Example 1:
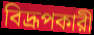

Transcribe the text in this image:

বিদ্রূপকারী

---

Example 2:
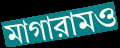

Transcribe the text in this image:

মাগারামও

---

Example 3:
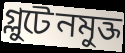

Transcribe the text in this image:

গ্লুটেনমুক্ত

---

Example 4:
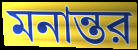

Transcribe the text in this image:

মনান্তর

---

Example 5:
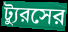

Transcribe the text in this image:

ট্যুরসের